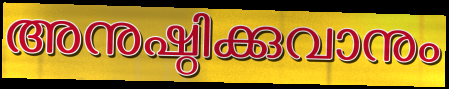
അനുഷ്ഠിക്കുവാനും